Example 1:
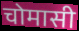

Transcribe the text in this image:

चोमासी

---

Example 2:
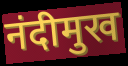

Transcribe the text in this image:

नंदीमुख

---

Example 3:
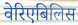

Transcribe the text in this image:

वेरिएबिलिस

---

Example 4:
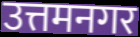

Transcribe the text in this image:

उत्तमनगर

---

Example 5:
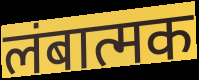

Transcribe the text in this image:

लंबात्मक